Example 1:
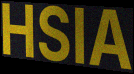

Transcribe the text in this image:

HSIA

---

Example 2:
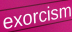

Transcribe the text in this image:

exorcism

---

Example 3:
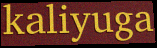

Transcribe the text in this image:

kaliyuga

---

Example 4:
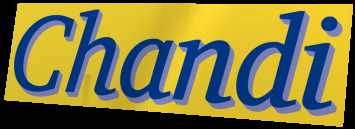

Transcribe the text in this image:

Chandi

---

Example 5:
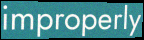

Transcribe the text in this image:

improperly